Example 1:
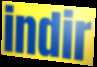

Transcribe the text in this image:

indir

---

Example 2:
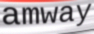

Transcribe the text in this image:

amway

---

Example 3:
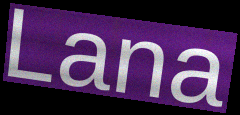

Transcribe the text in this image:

Lana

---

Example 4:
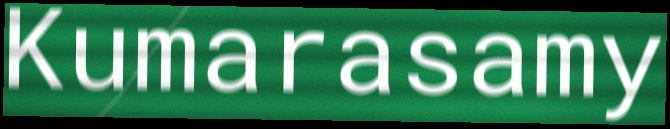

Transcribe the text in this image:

Kumarasamy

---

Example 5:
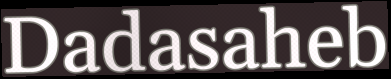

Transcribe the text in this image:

Dadasaheb